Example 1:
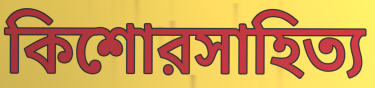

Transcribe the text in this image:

কিশোরসাহিত্য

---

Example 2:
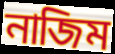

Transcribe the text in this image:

নাজিম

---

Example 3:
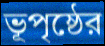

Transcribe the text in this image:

ভূপৃষ্ঠের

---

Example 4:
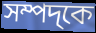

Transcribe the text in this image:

সম্পদ্‌কে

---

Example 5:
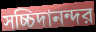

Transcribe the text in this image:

সচ্চিদানন্দর